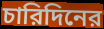
চারিদিনের